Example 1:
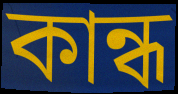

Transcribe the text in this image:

কান্ধ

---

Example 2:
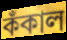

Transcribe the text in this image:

কঁকাল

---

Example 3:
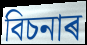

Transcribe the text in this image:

বিচনাৰ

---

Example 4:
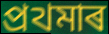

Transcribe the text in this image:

প্ৰথমাৰ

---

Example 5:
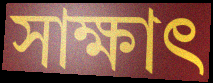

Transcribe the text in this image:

সাক্ষাৎ